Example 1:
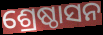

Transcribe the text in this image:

ଶ୍ରେଷ୍ଠାସନ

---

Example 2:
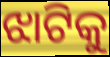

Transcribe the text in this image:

ଝାଟିକୁ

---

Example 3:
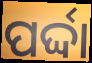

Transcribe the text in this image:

ପର୍ଦ୍ଦା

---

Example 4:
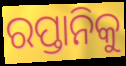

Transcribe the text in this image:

ରପ୍ତାନିକୁ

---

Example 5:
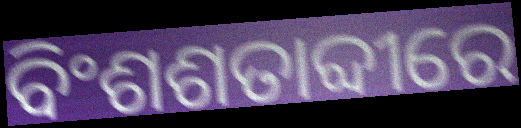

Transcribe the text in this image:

ବିଂଶଶତାବ୍ଦୀରେ